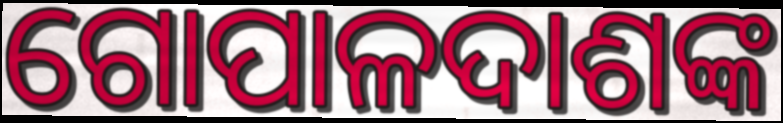
ଗୋପାଳଦାଶଙ୍କ